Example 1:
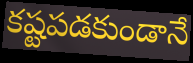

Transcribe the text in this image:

కష్టపడకుండానే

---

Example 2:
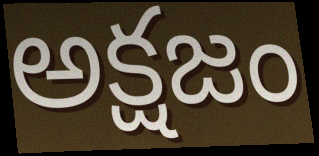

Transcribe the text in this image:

అక్షజం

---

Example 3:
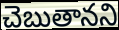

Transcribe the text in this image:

చెబుతానని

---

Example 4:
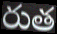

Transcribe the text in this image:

రుత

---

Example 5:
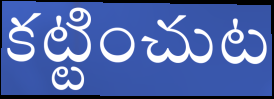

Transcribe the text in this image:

కట్టించుట